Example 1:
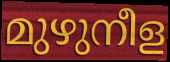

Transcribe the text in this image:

മുഴുനീള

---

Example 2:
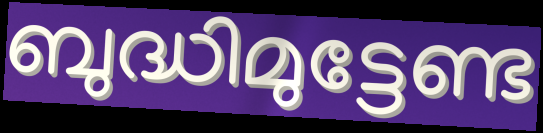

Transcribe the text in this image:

ബുദ്ധിമുട്ടേണ്ട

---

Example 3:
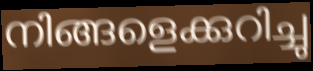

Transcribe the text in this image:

നിങ്ങളെക്കുറിച്ചു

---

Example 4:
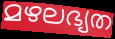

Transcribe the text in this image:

മഴലഭ്യത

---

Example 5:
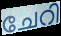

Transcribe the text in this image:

ചേറി